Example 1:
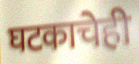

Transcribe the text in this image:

घटकाचेही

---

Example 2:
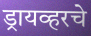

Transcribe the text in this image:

ड्रायव्हरचे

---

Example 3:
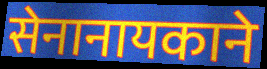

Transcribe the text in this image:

सेनानायकाने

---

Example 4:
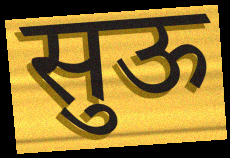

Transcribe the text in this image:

सुऊ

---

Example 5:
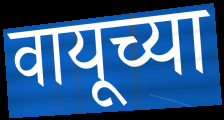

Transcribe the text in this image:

वायूच्या